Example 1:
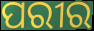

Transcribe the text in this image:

ପରୀର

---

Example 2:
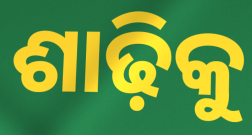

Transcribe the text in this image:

ଶାଢ଼ିକୁ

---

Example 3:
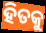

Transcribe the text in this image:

ହିତକୁ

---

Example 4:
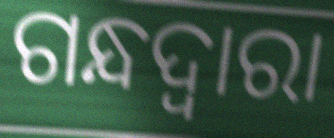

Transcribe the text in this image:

ଗନ୍ଧଦ୍ୱାରା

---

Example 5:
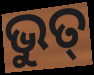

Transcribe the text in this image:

ଭୁତ୍